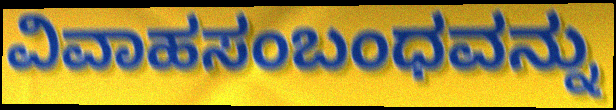
ವಿವಾಹಸಂಬಂಧವನ್ನು